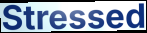
Stressed